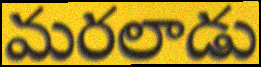
మరలాడు